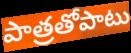
పాత్రతోపాటు